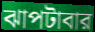
ঝাপটাবার